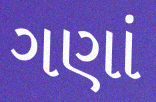
ગણાં